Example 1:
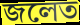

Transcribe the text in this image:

জলেত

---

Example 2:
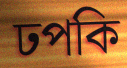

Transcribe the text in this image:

ঢপকি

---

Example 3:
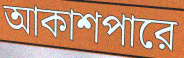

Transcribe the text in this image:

আকাশপারে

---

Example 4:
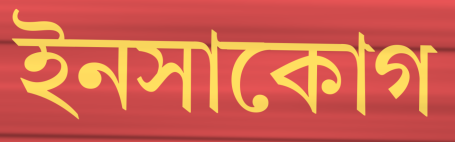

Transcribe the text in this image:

ইনসাকোগ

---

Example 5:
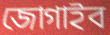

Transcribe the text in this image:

জোগাইব